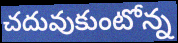
చదువుకుంటోన్న